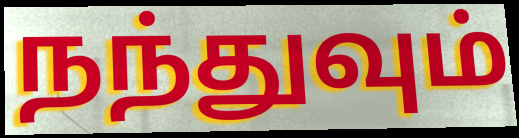
நந்துவும்